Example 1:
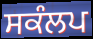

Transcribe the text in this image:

ਸਕੰਲਪ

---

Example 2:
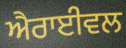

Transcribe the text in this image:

ਐਰਾਈਵਲ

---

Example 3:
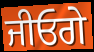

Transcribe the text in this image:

ਜੀਓਗੇ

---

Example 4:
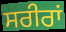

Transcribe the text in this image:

ਸਰੀਰਾਂ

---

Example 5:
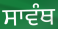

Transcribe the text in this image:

ਸਾਵੰਥ